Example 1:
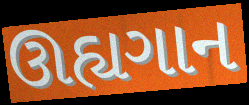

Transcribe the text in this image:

ઊહ્યગાન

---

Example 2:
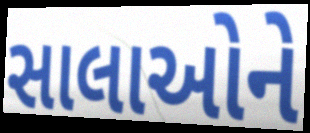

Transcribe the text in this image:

સાલાઓને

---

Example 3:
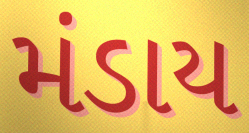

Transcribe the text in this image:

મંડાય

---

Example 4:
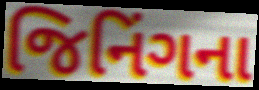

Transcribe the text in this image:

જિનિંગના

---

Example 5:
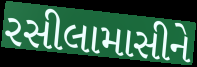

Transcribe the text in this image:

રસીલામાસીને